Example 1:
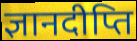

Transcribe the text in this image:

ज्ञानदीप्ति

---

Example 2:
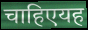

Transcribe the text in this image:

चाहिएयह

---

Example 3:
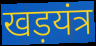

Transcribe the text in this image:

खड़यंत्र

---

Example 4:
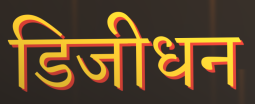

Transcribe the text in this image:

डिजीधन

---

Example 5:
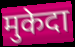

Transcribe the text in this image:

मुकेदा